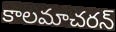
కాలమాచరన్